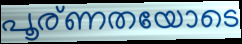
പൂര്ണതയോടെ